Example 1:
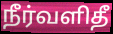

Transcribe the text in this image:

நீர்வளிதீ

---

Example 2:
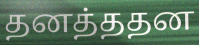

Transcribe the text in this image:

தனத்ததன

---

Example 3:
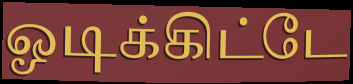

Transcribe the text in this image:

ஓடிக்கிட்டே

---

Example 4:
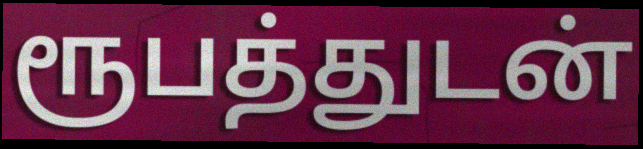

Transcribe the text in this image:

ரூபத்துடன்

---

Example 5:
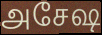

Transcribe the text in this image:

அசேஷ